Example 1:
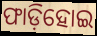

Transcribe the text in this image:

ଫାଡ଼ିହୋଇ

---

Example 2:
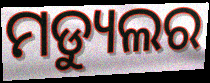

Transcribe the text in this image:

ମଡ୍ୟୁଲର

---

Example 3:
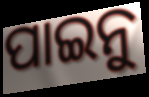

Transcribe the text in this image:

ପାଇନୁ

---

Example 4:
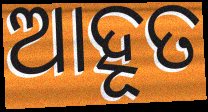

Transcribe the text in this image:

ଆହୂତ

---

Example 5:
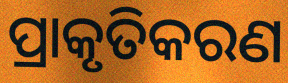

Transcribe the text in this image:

ପ୍ରାକୃତିକରଣ